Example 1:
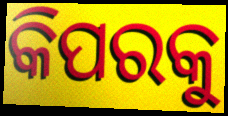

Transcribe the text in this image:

କିପରକୁ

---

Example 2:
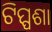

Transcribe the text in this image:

ଟିପ୍ପଶା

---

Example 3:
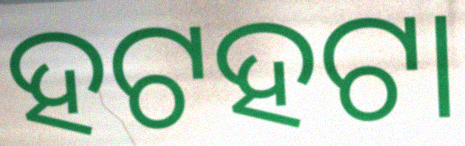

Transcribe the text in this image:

ହଟହଟା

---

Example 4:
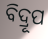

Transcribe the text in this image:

ବିଦ୍ରୂପ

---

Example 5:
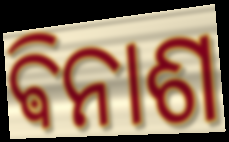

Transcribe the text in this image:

ଵିନାଶ